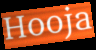
Hooja